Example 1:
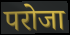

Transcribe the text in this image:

परोजा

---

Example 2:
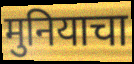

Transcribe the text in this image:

मुनियाचा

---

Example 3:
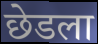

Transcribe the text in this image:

छेडला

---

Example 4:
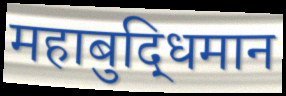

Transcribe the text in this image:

महाबुद्धिमान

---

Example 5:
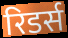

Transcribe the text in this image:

रिडर्स